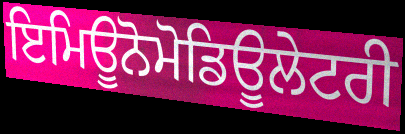
ਇਮਿਊਨੋਮੋਡਿਊਲੇਟਰੀ